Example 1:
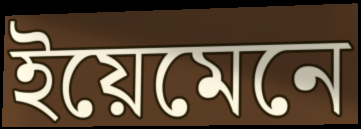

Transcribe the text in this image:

ইয়েমেনে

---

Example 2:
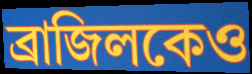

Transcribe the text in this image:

ব্রাজিলকেও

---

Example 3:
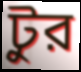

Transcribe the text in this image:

টুর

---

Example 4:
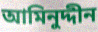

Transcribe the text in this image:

আমিনুদ্দীন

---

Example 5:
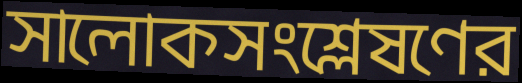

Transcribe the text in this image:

সালোকসংশ্লেষণের